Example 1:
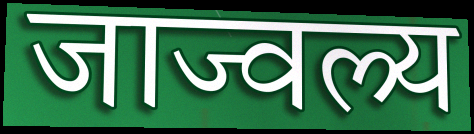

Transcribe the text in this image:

जाज्वल्य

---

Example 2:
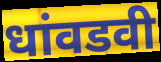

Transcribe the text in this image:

धांवडवी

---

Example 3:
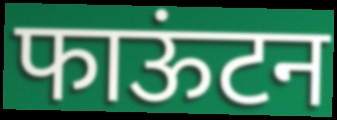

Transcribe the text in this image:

फाऊंटन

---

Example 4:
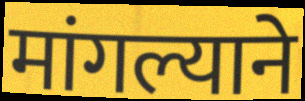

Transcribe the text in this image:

मांगल्याने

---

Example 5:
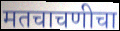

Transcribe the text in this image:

मतचाचणीचा